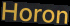
Horon